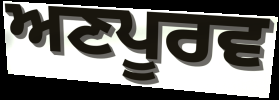
ਅਣਪੂਰਵ